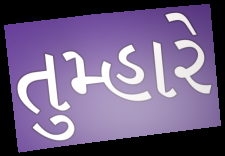
તુમ્હારે